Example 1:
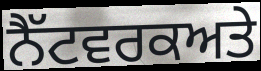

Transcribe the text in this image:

ਨੈੱਟਵਰਕਅਤੇ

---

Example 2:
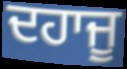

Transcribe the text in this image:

ਦਹਾਜੂ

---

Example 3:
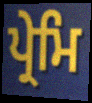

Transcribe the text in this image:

ਪ੍ਰੇਮਿ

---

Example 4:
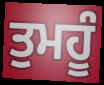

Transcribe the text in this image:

ਤੁਮਹੂੰ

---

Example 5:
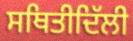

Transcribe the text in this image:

ਸਥਿਤੀਦਿੱਲੀ